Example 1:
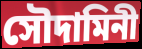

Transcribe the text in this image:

সৌদামিনী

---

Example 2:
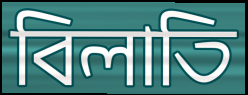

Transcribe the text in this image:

বিলাতি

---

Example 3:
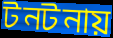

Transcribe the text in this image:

টনটনায়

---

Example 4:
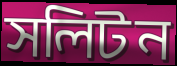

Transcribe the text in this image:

সলিটন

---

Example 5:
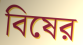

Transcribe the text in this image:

বিষের